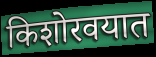
किशोरवयात